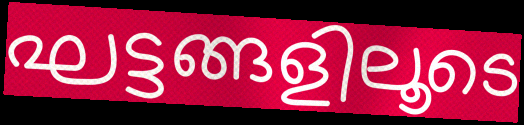
ഘട്ടങ്ങളിലൂടെ